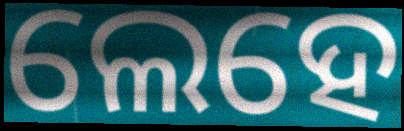
ଲେହେ